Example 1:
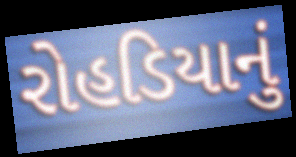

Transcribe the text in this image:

રોહડિયાનું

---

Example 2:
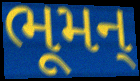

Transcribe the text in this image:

ભૂમન્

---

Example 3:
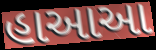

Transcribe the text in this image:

હાઆઆ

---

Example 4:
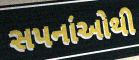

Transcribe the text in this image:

સપનાંઓથી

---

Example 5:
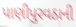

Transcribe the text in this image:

પાણીપુરવઠાની